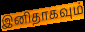
இனிதாகவும்